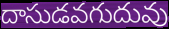
దాసుడవగుదువు